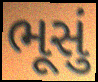
ભૂસું